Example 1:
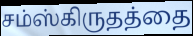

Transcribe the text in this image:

சம்ஸ்கிருதத்தை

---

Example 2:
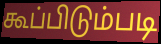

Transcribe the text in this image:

கூப்பிடும்படி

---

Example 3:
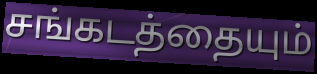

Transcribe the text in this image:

சங்கடத்தையும்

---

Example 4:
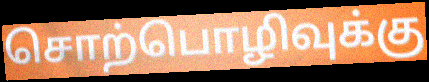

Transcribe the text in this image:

சொற்பொழிவுக்கு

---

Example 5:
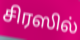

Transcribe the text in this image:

சிரஸில்